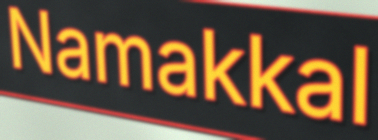
Namakkal